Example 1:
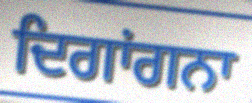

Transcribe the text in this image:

ਦਿਗਾਂਗਨਾ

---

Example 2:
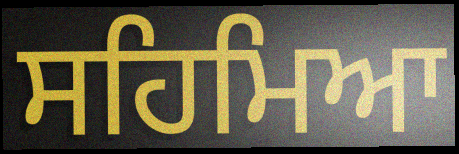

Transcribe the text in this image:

ਸਹਿਮਿਆ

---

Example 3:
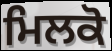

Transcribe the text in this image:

ਮਿਲਕੋ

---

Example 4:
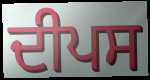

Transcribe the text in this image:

ਦੀਪਸ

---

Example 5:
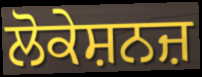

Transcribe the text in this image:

ਲੋਕੇਸ਼ਨਜ਼